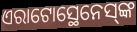
ଏରାଟୋସ୍ଥେନେସ୍‌ଙ୍କ